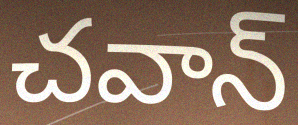
చవాన్